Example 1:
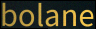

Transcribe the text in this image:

bolane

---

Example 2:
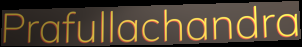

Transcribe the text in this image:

Prafullachandra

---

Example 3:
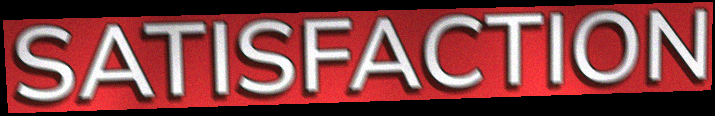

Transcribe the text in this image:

SATISFACTION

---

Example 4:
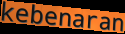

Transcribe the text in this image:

kebenaran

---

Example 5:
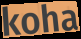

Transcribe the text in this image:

koha